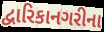
દ્વારિકાનગરીના